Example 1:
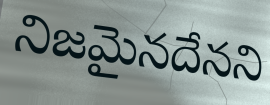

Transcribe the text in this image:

నిజమైనదేనని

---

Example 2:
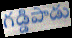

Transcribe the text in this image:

గడ్డిపాడు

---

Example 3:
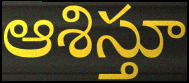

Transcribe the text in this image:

ఆశిస్తూ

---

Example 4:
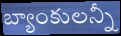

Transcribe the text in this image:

బ్యాంకులన్నీ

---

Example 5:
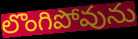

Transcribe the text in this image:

లొంగిపోవును